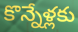
కొన్నేళ్లకు